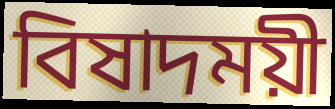
বিষাদময়ী